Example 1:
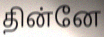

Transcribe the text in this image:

தின்னே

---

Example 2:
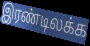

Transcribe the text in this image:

இரண்டிலக்க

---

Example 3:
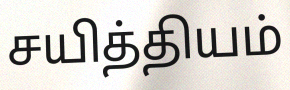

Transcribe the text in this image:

சயித்தியம்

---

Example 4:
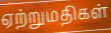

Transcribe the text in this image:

ஏற்றுமதிகள்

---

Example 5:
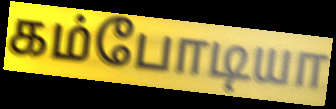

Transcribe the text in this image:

கம்போடியா